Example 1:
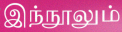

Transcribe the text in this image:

இந்நூலும்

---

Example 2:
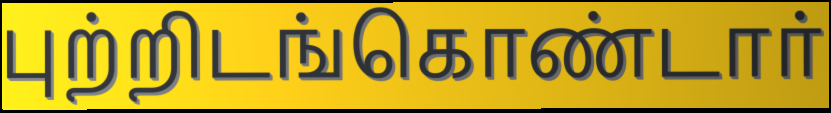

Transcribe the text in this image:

புற்றிடங்கொண்டார்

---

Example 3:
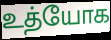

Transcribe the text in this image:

உத்யோக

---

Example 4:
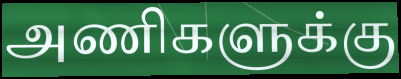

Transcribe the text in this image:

அணிகளுக்கு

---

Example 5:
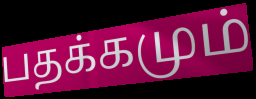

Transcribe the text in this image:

பதக்கமும்